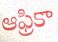
ఆఫ్రికా